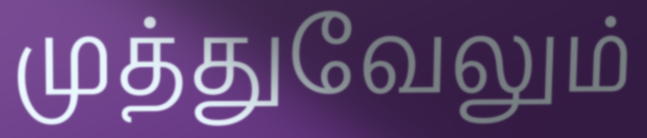
முத்துவேலும்